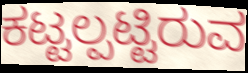
ಕಟ್ಟಲ್ಪಟ್ಟಿರುವ